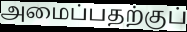
அமைப்பதற்குப்